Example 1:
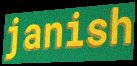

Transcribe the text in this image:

janish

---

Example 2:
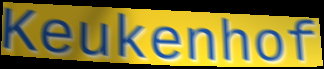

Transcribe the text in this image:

Keukenhof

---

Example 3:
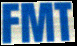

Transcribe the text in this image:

FMT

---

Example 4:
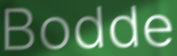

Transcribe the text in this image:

Bodde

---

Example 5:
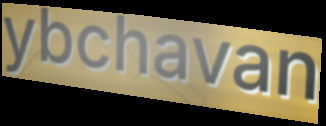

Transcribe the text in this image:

ybchavan